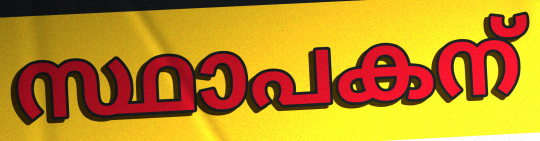
സ്ഥാപകന്